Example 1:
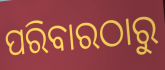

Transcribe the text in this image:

ପରିବାରଠାରୁ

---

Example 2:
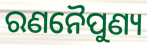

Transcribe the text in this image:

ରଣନୈପୁଣ୍ୟ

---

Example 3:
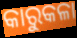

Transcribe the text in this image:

କାରୁକଳା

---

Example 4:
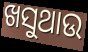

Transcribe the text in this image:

ଖସୁଥାଉ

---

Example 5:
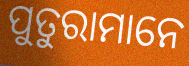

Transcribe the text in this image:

ପୁତୁରାମାନେ